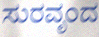
ಸುರವೃಂದ